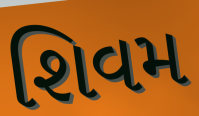
શિવમ